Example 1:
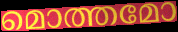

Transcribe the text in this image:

മൊത്തമോ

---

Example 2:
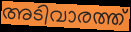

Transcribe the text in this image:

അടിവാരത്ത്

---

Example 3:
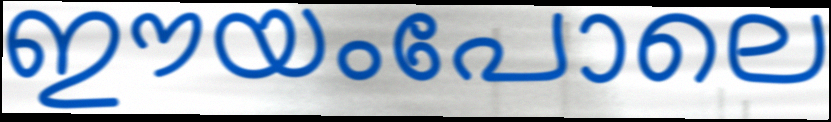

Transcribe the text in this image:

ഈയംപോലെ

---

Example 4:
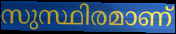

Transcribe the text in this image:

സുസ്ഥിരമാണ്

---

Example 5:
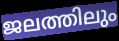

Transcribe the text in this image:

ജലത്തിലും